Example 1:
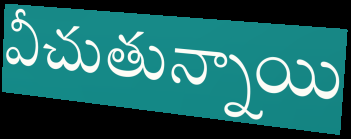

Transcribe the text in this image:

వీచుతున్నాయి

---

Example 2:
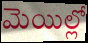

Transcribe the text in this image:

మెయిల్లో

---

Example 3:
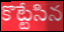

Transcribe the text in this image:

కొట్టేసిన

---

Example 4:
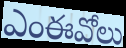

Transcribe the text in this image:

ఎంఈవోలు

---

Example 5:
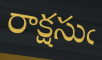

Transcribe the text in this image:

రాక్షసుఁ